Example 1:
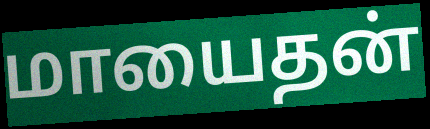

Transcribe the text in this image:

மாயைதன்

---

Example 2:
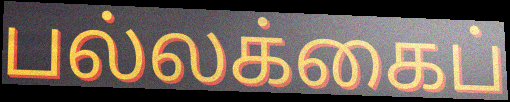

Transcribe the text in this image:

பல்லக்கைப்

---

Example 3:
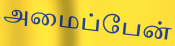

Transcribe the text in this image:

அமைப்பேன்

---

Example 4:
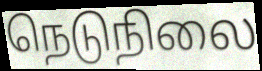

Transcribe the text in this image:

நெடுநிலை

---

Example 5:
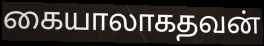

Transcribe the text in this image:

கையாலாகதவன்